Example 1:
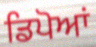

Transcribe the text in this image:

ਡਿਪੋਆਂ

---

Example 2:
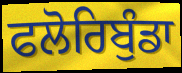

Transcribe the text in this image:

ਫਲੋਰਿਬੁੰਡਾ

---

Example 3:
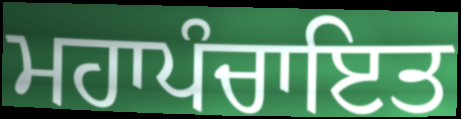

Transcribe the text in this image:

ਮਹਾਪੰਚਾਇਤ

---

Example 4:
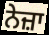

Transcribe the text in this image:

ਨੇਜ਼ਾ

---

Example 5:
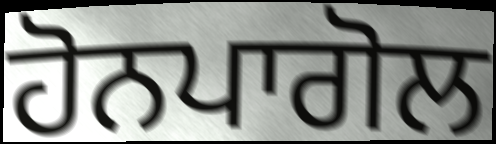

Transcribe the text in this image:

ਹੋਨਪਾਗੋਲ